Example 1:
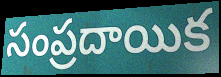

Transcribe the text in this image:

సంప్రదాయిక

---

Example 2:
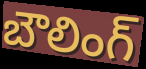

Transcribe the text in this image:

బౌలింగ్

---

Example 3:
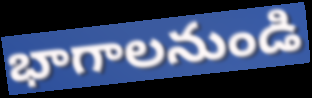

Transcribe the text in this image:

భాగాలనుండి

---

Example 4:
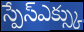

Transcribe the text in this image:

స్పేస్ఎక్స్కు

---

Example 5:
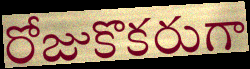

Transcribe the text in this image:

రోజుకొకరుగా